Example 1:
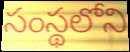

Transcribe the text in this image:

సంస్థలోని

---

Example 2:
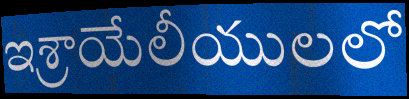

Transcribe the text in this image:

ఇశ్రాయేలీయులలో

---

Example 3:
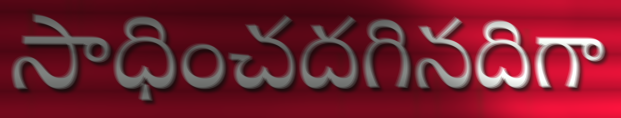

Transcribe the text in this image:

సాధించదగినదిగా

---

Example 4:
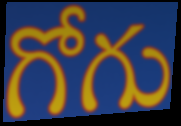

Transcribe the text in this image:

గోగు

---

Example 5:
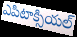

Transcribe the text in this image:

ఎపిటాక్సియల్